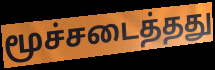
மூச்சடைத்தது